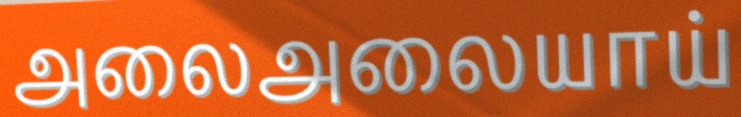
அலைஅலையாய்